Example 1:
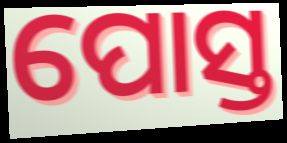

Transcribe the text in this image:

ପୋସ୍ତ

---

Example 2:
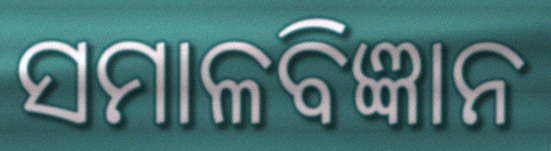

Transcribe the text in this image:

ସମାଳବିଜ୍ଞାନ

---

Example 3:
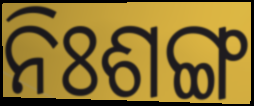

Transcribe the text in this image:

ନିଃଶଙ୍ଗ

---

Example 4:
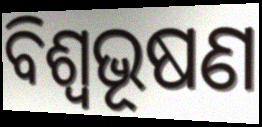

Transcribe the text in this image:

ବିଶ୍ୱଭୂଷଣ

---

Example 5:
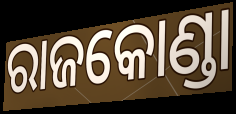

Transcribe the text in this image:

ରାଜକୋଣ୍ଡା